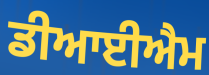
ਡੀਆਈਐਮ